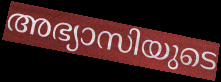
അഭ്യാസിയുടെ